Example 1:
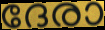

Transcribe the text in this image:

ദേരാ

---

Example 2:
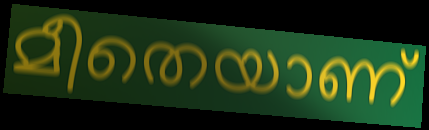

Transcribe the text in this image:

മീതെയാണ്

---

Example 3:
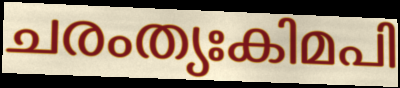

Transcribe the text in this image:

ചരംത്യഃകിമപി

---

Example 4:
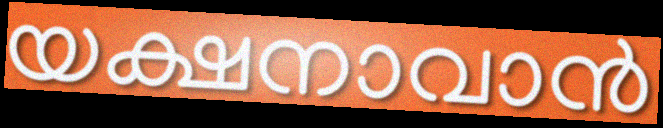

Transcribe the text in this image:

യക്ഷനാവാൻ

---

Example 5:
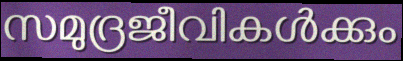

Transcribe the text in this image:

സമുദ്രജീവികൾക്കും